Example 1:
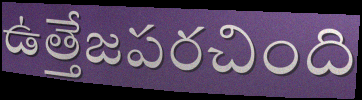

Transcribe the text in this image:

ఉత్తేజపరచింది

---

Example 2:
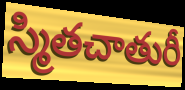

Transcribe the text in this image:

స్మితచాతురీ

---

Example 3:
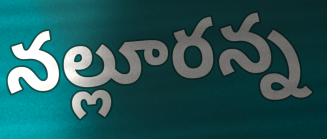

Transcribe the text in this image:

నల్లూరన్న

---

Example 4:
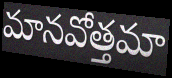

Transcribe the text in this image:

మానవోత్తమా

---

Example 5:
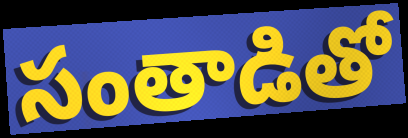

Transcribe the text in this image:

సంతాడితో